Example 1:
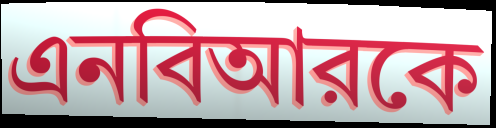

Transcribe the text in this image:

এনবিআরকে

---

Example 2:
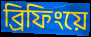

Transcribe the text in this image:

ব্রিফিংয়ে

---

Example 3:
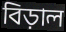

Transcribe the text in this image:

বিড়াল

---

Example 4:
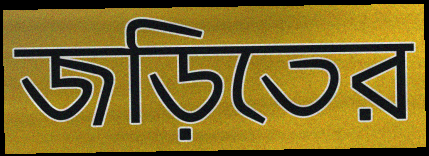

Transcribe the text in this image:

জড়িতের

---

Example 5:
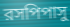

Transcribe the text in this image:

রসপিপাসু